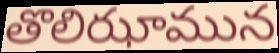
తొలిఝామున